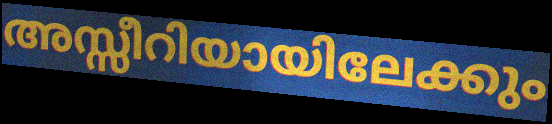
അസ്സീറിയായിലേക്കും